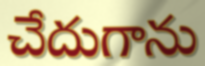
చేదుగాను